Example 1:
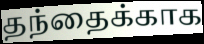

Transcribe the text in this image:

தந்தைக்காக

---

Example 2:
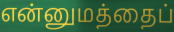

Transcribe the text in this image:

என்னுமத்தைப்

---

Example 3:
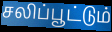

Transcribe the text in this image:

சலிப்பூட்டும்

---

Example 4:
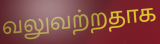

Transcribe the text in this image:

வலுவற்றதாக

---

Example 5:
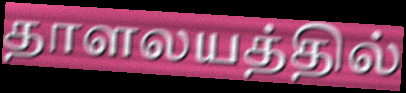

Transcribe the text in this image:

தாளலயத்தில்